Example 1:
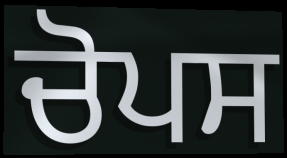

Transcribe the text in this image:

ਚੋਪਸ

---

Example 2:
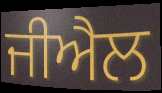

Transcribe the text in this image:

ਜੀਐਲ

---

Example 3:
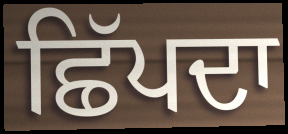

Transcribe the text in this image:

ਛਿੱਪਦਾ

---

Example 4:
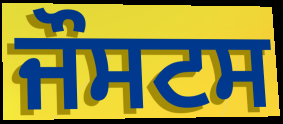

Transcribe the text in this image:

ਜੌਸਟਸ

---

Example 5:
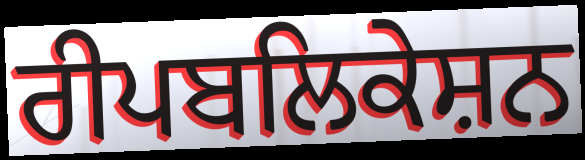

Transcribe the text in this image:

ਰੀਪਬਲਿਕੇਸ਼ਨ